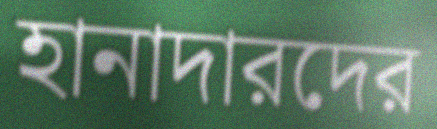
হানাদারদের